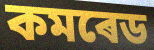
কমৰেড